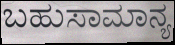
ಬಹುಸಾಮಾನ್ಯ